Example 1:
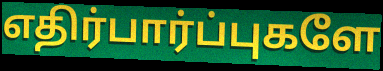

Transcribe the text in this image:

எதிர்பார்ப்புகளே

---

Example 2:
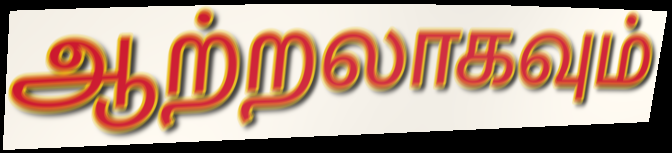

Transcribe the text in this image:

ஆற்றலாகவும்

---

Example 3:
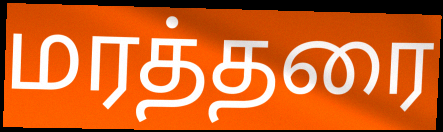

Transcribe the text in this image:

மரத்தரை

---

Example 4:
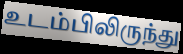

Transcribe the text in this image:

உடம்பிலிருந்து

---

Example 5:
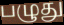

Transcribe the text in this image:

பழுது